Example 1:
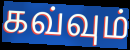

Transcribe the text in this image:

கவ்வும்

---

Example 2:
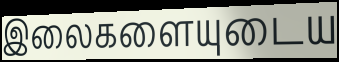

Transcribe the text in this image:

இலைகளையுடைய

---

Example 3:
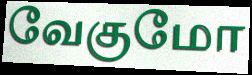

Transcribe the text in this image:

வேகுமோ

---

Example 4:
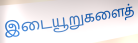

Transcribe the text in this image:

இடையூறுகளைத்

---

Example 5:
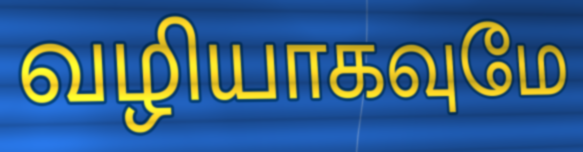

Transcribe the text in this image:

வழியாகவுமே